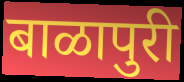
बाळापुरी